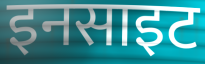
इनसाइट